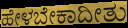
ಹೇಳಬೇಕಾದೀತು